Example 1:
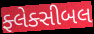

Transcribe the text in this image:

ફ્લેક્સીબલ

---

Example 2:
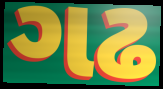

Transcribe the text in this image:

ગઢ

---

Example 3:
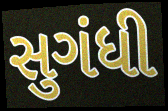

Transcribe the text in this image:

સુગંધી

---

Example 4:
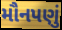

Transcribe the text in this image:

મૌનપણું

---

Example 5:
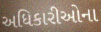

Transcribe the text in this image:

અધિકારીઓના